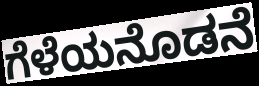
ಗೆಳೆಯನೊಡನೆ